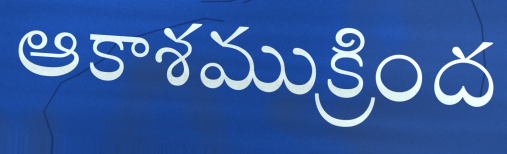
ఆకాశముక్రింద